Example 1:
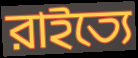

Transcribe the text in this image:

রাইত্যে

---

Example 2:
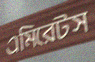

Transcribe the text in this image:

এমিরেটস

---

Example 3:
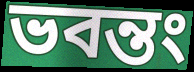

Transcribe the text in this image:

ভবন্তং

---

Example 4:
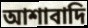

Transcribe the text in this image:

আশাবাদি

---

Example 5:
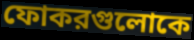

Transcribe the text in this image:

ফোকরগুলোকে